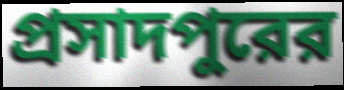
প্রসাদপুরের